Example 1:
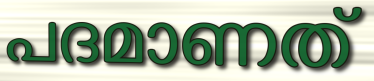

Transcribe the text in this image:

പദമാണത്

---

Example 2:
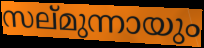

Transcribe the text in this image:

സല്മുന്നായും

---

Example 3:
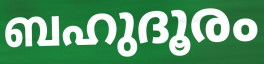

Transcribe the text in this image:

ബഹുദൂരം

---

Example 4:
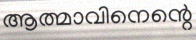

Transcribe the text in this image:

ആത്മാവിനെന്റെ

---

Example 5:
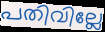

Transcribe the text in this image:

പതിവില്ലേ